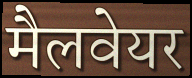
मैलवेयर